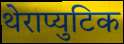
थेराप्युटिक